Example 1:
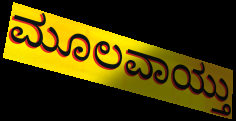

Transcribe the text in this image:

ಮೂಲವಾಯ್ತು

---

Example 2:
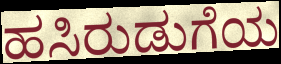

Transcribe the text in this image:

ಹಸಿರುಡುಗೆಯ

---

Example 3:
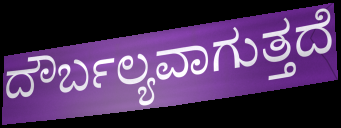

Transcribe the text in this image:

ದೌರ್ಬಲ್ಯವಾಗುತ್ತದೆ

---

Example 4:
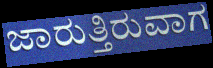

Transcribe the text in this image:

ಜಾರುತ್ತಿರುವಾಗ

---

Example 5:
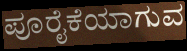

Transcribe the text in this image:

ಪೂರೈಕೆಯಾಗುವ